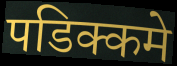
पडिक्कमे